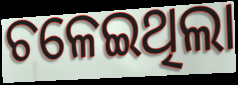
ଚଳେଇଥିଲା